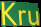
Kru